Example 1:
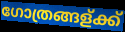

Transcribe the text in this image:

ഗോത്രങ്ങള്ക്ക്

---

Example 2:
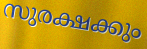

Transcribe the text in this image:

സുരക്ഷക്കും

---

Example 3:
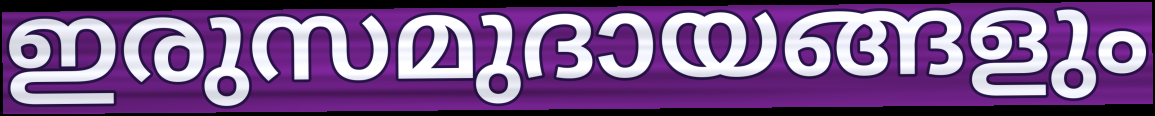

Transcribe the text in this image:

ഇരുസമുദായങ്ങളും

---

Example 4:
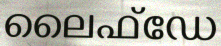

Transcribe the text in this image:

ലൈഫ്ഡേ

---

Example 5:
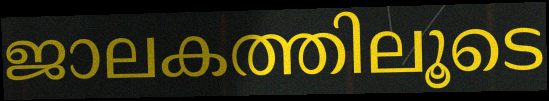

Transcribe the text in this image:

ജാലകത്തിലൂടെ